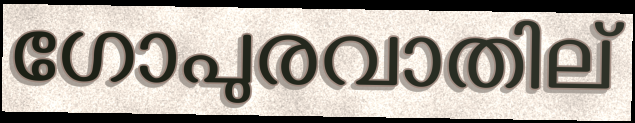
ഗോപുരവാതില്